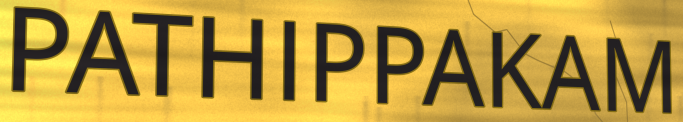
PATHIPPAKAM